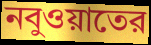
নবুওয়াতের